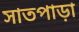
সাতপাড়া